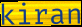
kiran